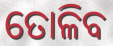
ତୋଳିବ